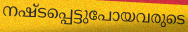
നഷ്ടപ്പെട്ടുപോയവരുടെ